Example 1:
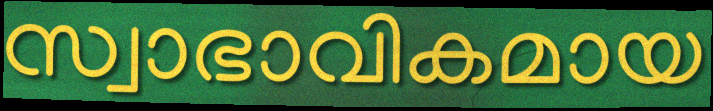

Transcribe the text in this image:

സ്വാഭാവികമായ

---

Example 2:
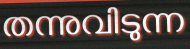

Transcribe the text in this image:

തന്നുവിടുന്ന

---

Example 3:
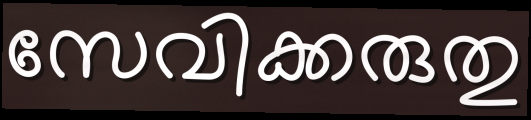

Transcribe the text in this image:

സേവിക്കരുതു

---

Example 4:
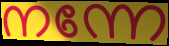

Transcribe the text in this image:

നന്നേ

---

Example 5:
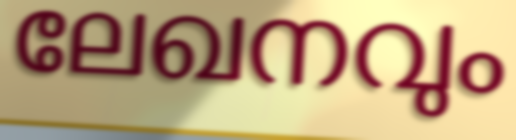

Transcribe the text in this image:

ലേഖനവും